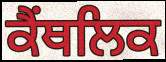
ਕੈਂਥਲਿਕ